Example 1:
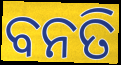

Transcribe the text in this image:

ବନତି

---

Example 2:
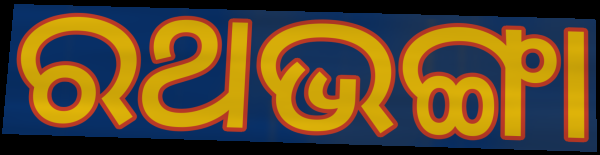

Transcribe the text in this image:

ରଥଭଙ୍ଗା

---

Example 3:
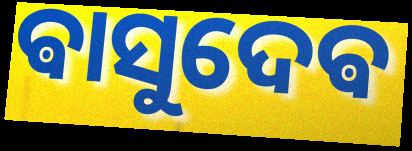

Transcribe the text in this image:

ଵାସୁଦେଵ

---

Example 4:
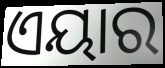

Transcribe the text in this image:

ଏୟାର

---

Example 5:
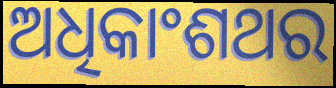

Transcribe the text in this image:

ଅଧିକାଂଶଥର